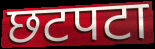
छटपटा